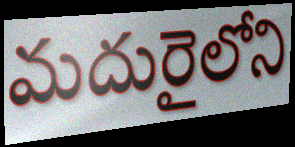
మదురైలోని